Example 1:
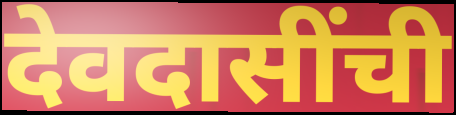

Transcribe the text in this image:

देवदासींची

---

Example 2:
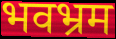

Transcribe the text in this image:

भवभ्रम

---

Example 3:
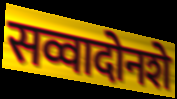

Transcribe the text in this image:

सव्वादोनशे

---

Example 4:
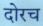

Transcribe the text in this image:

दोरच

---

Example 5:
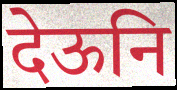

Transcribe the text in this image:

देऊनि